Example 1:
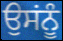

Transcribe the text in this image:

ਉਸਂਨੂੰ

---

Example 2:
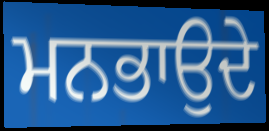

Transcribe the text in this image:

ਮਨਭਾਉਦੇ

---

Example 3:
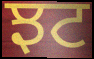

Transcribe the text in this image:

ਝਟ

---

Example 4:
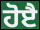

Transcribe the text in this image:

ਹੋੲੈ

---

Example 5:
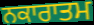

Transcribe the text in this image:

ਨਕਾਰਾਤਮ